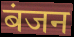
बंजन